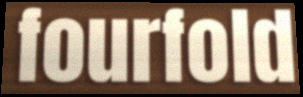
fourfold